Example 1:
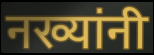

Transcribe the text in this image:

नख्यांनी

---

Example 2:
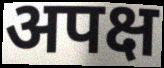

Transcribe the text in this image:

अपक्ष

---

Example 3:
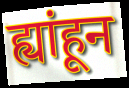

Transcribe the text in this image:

ह्यांहून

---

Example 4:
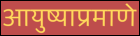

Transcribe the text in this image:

आयुष्याप्रमाणे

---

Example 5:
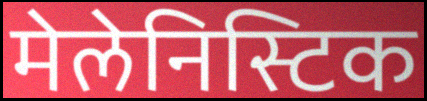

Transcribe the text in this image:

मेलेनिस्टिक